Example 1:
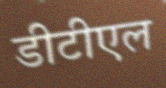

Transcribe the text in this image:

डीटीएल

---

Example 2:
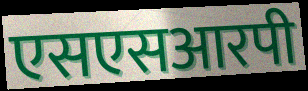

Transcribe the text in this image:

एसएसआरपी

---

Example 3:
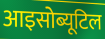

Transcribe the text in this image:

आइसोब्यूटिल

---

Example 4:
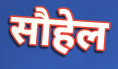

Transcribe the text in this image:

सौहेल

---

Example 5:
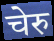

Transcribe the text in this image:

चेरु